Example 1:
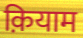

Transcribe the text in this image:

क़ियाम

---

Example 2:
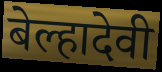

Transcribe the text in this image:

बेल्हादेवी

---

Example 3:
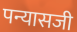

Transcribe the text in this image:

पन्यासजी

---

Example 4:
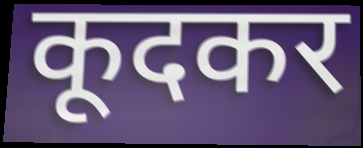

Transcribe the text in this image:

कूदकर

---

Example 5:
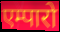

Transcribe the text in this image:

एम्पारो